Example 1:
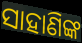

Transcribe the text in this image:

ସାହାଣିଙ୍କ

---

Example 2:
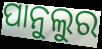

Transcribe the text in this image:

ପାନୁଲୁର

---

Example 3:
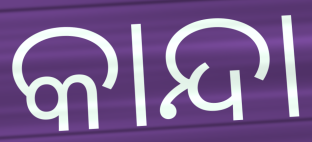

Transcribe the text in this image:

କାନ୍ଦା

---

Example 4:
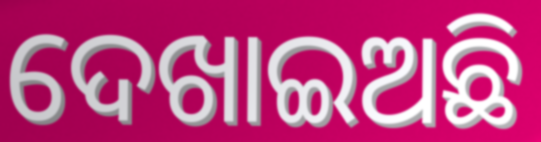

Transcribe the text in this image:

ଦେଖାଇଅଛି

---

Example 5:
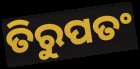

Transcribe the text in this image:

ତିରୁପତଂ